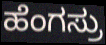
ಹೆಂಗಸ್ರು